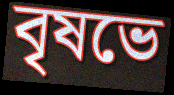
বৃষভে